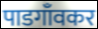
पाडगाँवकर